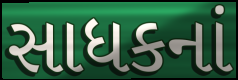
સાધકનાં